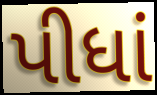
પીધાં